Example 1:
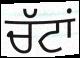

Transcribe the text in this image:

ਚੱਟਾਂ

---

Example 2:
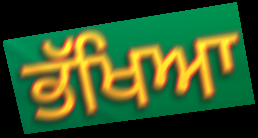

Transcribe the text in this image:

ਭੱਖਿਆ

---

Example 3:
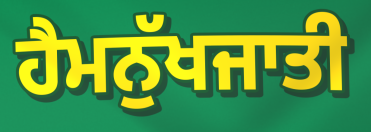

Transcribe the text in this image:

ਹੈਮਨੁੱਖਜਾਤੀ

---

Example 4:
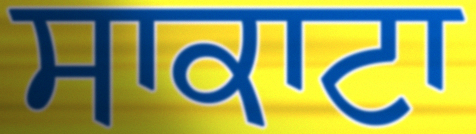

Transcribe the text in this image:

ਸਾਕਾਟਾ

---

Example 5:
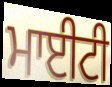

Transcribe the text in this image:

ਮਾਈਟੀ